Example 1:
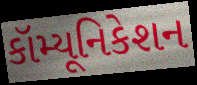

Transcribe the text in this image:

કૉમ્યૂનિકેશન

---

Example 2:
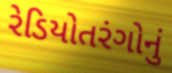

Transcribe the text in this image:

રેડિયોતરંગોનું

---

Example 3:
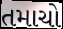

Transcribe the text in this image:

તમાચો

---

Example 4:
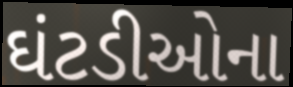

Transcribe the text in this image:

ઘંટડીઓના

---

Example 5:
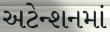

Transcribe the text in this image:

અટેન્શનમાં